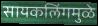
सायकलिंगमुळे